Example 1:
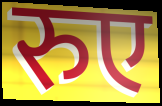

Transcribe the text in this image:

रुए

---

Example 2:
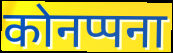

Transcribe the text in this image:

कोनप्पना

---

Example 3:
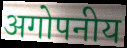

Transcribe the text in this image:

अगोपनीय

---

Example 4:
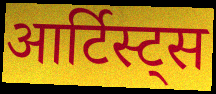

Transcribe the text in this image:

आर्टिस्ट्स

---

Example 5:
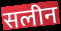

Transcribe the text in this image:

सलीन